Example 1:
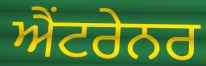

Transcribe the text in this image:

ਐਂਟਰੇਨਰ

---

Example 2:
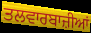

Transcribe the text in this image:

ਤਲਵਾਰਬਾਜ਼ੀਆਂ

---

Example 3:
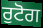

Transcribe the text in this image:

ਰੁਟੋਗ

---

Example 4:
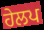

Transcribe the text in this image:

ਹੇਲਪ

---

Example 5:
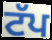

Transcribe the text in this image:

ਟੱਪ